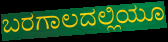
ಬರಗಾಲದಲ್ಲಿಯೂ